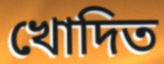
খোদিত